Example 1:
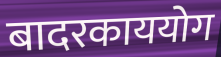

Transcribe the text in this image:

बादरकाययोग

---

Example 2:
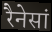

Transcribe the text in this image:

रैनेसां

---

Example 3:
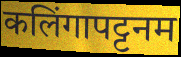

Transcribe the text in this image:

कलिंगापट्टनम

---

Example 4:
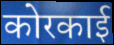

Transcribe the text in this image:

कोरकाई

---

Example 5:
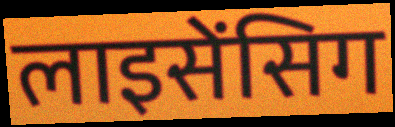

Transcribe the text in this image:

लाइसेंसिग